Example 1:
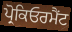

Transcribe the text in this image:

ਪ੍ਰੋਕਿਓਰਮੈਂਟ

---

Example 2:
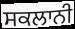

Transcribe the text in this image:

ਸਕਲਾਨੀ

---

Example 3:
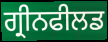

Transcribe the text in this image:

ਗ੍ਰੀਨਫੀਲਡ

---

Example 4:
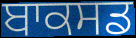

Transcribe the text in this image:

ਬਾਕਸਡ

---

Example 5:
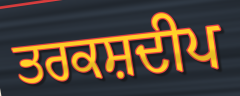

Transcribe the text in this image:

ਤਰਕਸ਼ਦੀਪ